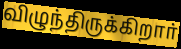
விழுந்திருக்கிறார்